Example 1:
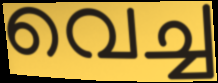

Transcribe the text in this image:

വെച്ച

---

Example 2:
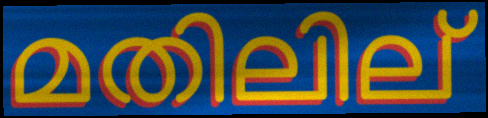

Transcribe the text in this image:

മതിലില്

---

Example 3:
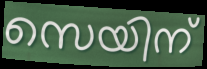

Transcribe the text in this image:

സെയിന്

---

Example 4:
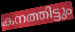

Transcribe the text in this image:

കനത്തിട്ടും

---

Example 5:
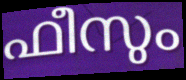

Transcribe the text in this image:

ഫീസും